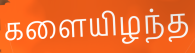
களையிழந்த